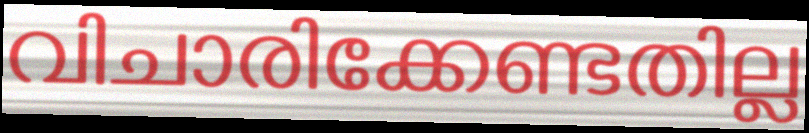
വിചാരിക്കേണ്ടതില്ല